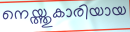
നെയ്ത്തുകാരിയായ